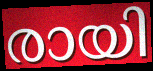
രായി